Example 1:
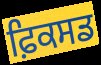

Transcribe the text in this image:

ਫ਼ਿਕਸਡ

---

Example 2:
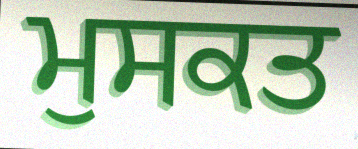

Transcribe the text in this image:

ਮੁਸਕਤ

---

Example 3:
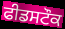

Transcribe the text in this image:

ਫੀਡਸਟੌਕ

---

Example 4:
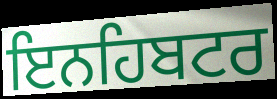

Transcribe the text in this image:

ਇਨਹਿਬਟਰ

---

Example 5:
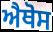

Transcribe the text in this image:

ਐਥੋਸ